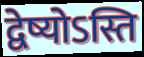
द्वेष्योऽस्ति